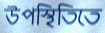
উপস্থিতিতে